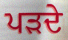
ਪੜਦੇ